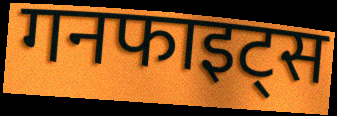
गनफाइट्स